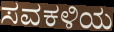
ಸವಕಳಿಯ